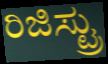
ರಿಜಿಸ್ಟ್ರು